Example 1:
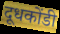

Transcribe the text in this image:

दूधकोंडी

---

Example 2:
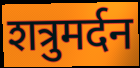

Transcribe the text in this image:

शत्रुमर्दन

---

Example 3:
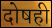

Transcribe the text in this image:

दोषही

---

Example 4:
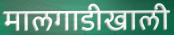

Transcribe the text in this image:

मालगाडीखाली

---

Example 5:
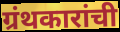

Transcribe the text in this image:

ग्रंथकारांची